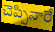
చెప్పినారే